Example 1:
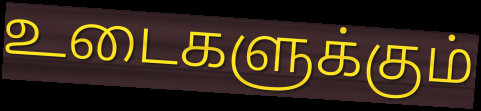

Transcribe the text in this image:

உடைகளுக்கும்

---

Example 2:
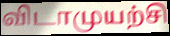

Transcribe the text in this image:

விடாமுயற்சி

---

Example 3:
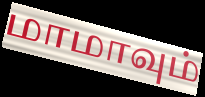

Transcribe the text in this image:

மாமாவும்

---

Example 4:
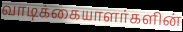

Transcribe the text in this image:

வாடிக்கையாளர்களின்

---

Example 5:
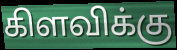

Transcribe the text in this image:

கிளவிக்கு